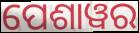
ପେଶାୱର